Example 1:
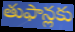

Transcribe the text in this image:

తుఫాన్లకు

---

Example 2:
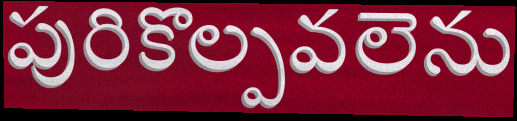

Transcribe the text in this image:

పురికొల్పవలెను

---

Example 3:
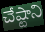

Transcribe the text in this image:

చేష్టాని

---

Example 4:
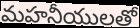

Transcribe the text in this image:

మహనీయులతో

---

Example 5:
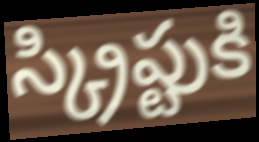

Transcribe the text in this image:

స్క్రిప్టుకి